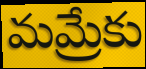
మమ్రేకు